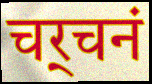
चर्चनं